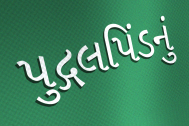
પુદ્ગલપિંડનું